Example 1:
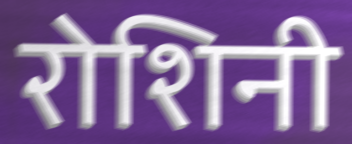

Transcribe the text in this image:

रोशिनी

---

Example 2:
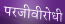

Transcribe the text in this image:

परजीवीरोधी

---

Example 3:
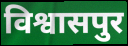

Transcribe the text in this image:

विश्वासपुर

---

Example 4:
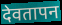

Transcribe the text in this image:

देवतापन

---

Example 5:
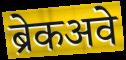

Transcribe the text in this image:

ब्रेकअवे